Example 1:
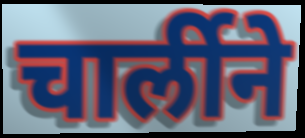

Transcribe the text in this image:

चार्लीने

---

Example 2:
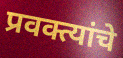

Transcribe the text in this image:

प्रवक्त्यांचे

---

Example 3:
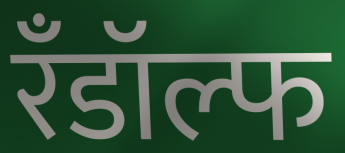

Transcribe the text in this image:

रँडॉल्फ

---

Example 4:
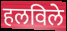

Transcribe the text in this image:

हलविले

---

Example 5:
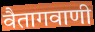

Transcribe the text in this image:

वैतागवाणी